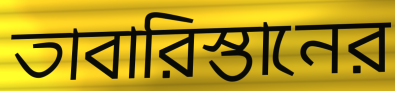
তাবারিস্তানের